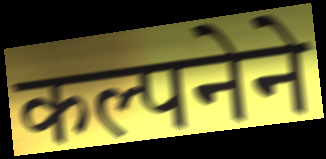
कल्पनेने